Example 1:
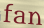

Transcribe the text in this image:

fan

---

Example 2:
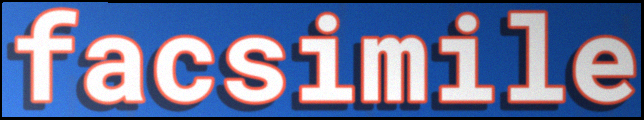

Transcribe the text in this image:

facsimile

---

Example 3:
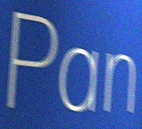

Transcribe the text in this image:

Pan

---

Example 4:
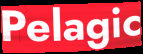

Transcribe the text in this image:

Pelagic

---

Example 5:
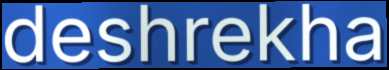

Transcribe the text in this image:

deshrekha